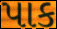
પાક